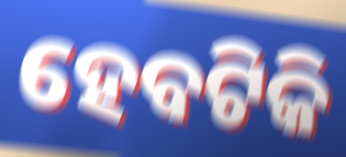
ହେବଟିକି